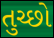
તુચ્છો